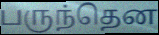
பருந்தென